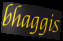
bhaggis